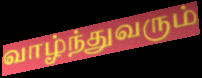
வாழ்ந்துவரும்